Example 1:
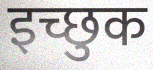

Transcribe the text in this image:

इच्छुक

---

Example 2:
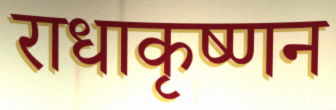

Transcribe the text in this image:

राधाकृष्णन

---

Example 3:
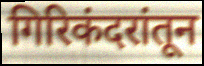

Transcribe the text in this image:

गिरिकंदरांतून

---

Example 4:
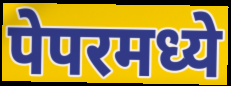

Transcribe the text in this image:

पेपरमध्ये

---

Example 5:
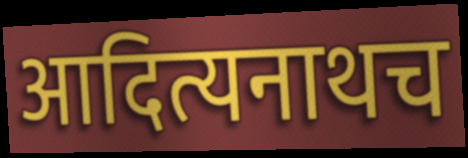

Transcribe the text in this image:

आदित्यनाथच